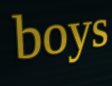
boys